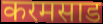
करमसाड